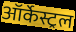
ऑर्केस्ट्रल